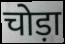
चोड़ा